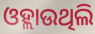
ଓହ୍ଲାଉଥିଲି